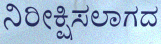
ನಿರೀಕ್ಷಿಸಲಾಗದ